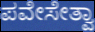
ಪವೇಸೇತ್ವಾ